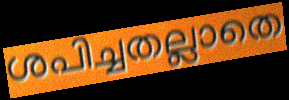
ശപിച്ചതല്ലാതെ